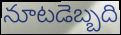
నూటడెబ్బది